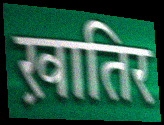
ख़ातिर